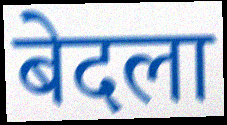
बेदला